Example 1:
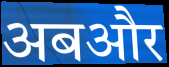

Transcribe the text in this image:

अबऔर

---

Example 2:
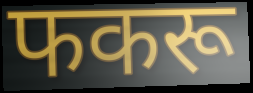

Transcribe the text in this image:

फकरू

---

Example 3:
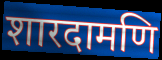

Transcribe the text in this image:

शारदामणि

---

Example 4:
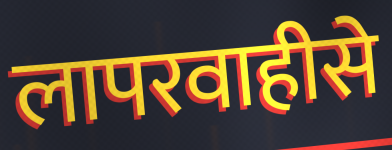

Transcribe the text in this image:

लापरवाहीसे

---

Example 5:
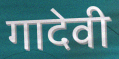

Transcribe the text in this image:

गादेवी